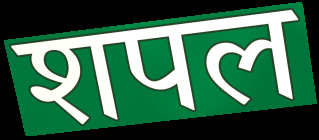
शपल